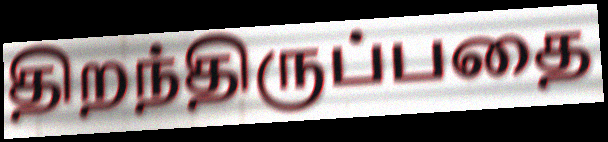
திறந்திருப்பதை